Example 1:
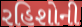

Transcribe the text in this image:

રહિશોની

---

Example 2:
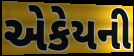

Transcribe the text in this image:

એકેયની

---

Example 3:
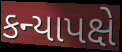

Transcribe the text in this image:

કન્યાપક્ષે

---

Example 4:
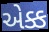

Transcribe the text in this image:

એક્ક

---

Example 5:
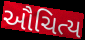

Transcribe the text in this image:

ઔચિત્ય